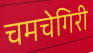
चमचेगिरी